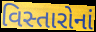
વિસ્તારોનાં